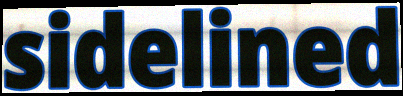
sidelined